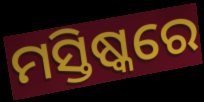
ମସ୍ତିଷ୍କରେ